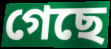
গেছে